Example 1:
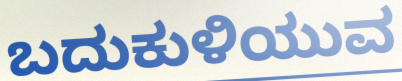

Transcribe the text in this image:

ಬದುಕುಳಿಯುವ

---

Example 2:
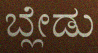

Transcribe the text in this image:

ಬ್ಲೇಡು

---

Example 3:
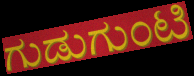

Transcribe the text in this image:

ಗುಡುಗುಂಟಿ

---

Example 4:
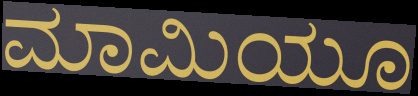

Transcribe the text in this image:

ಮಾಮಿಯೂ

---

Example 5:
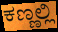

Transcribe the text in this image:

ಕಣ್ಣಲ್ಲಿ